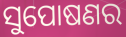
ସୁପୋଷଣର